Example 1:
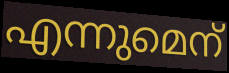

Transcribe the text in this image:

എന്നുമെന്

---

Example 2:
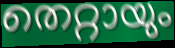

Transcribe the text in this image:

തെറ്റായും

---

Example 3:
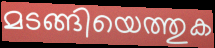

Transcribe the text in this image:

മടങ്ങിയെത്തുക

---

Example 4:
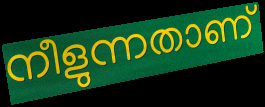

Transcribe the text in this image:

നീളുന്നതാണ്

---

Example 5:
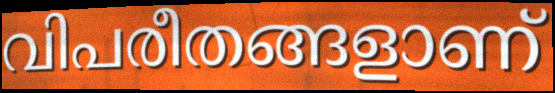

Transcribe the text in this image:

വിപരീതങ്ങളാണ്